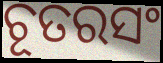
ଚୂତରସଂ